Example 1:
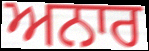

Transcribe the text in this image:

ਅਨਾਰ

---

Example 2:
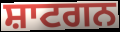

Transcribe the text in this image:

ਸ਼ਾਟਗਨ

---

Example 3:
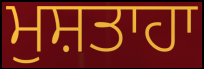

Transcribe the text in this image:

ਮੁਸ਼ਤਾਹਾ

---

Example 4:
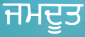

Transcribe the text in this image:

ਜਮਦੂਤ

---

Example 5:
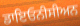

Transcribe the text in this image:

ਡਾਇਓਨੀਸੀਅਨ